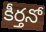
కీర్తనో